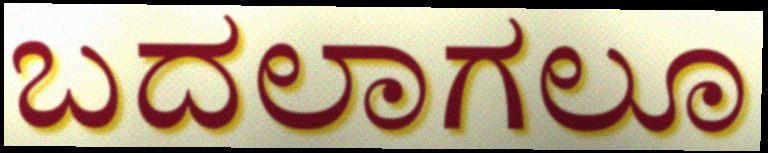
ಬದಲಾಗಲೂ